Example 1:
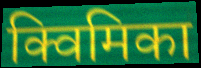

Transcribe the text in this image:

क्विमिका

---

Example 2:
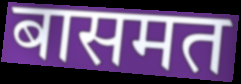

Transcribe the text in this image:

बासमत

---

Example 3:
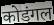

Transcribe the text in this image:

कोडंगल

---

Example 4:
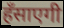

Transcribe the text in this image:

हँसाएगी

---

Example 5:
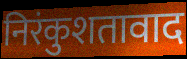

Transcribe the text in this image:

निरंकुशतावाद